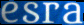
esra